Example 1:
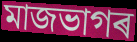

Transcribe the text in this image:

মাজভাগৰ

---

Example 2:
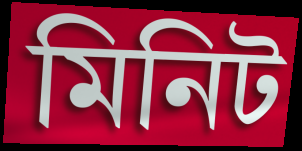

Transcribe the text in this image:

মিনিট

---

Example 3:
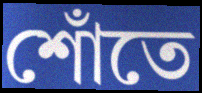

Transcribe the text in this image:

শোঁতে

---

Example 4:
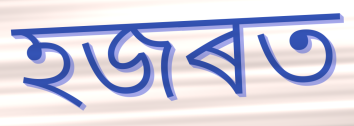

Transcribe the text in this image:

হজৰত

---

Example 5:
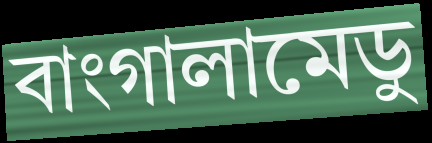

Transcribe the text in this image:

বাংগালামেডু